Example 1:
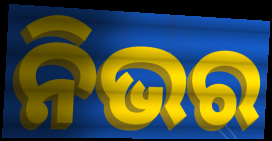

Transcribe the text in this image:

ନିଭର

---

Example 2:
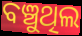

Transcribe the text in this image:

ବଞ୍ଚୁଥିଲ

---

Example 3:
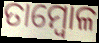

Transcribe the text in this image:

ତାମ୍ବୋଳ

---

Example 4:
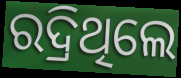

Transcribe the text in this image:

ରଦ୍ରିଥିଲେ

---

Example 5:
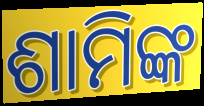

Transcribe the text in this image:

ଶାମିଙ୍କ